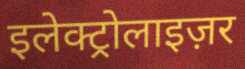
इलेक्ट्रोलाइज़र